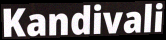
Kandivali